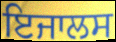
ਇਜਾਲਸ